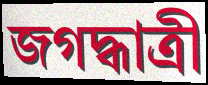
জগদ্ধাত্রী